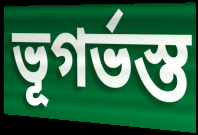
ভূগর্ভস্ত